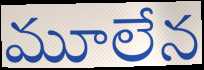
మూలేన